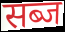
सब्ज